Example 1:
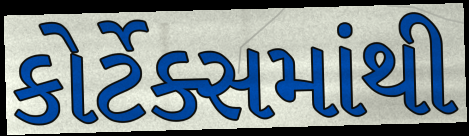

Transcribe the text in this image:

કોર્ટેક્સમાંથી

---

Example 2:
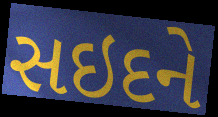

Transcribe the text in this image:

સઇદને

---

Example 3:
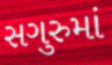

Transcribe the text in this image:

સગુરુમાં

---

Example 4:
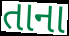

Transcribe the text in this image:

તાના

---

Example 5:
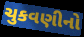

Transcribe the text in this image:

ચુકવણીનો